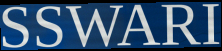
SSWARI